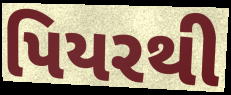
પિયરથી